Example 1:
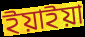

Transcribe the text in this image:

ইয়াইয়া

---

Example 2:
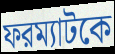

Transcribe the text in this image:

ফরম্যাটকে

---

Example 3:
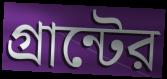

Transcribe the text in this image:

গ্রান্টের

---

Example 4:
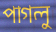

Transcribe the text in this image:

পাগলু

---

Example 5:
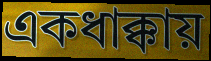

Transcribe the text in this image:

একধাক্কায়